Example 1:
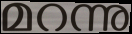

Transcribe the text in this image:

മറന്നു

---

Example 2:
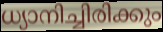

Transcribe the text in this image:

ധ്യാനിച്ചിരിക്കും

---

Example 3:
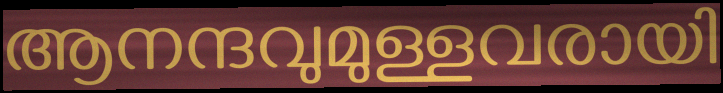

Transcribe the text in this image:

ആനന്ദവുമുള്ളവരായി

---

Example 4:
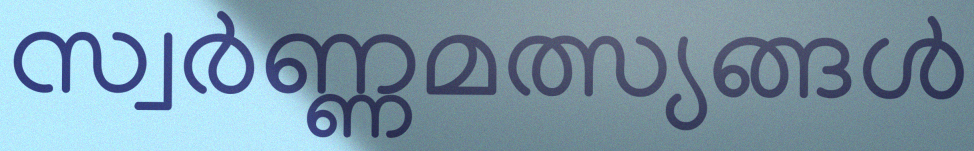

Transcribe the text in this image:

സ്വർണ്ണമത്സ്യങ്ങൾ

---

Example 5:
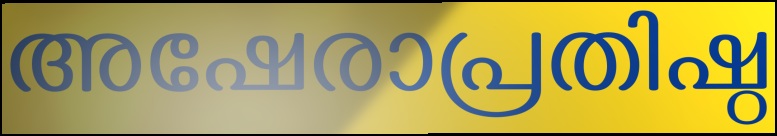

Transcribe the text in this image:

അഷേരാപ്രതിഷ്ഠ